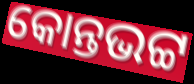
କୋନ୍ତଭଟ୍ଟ